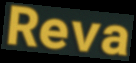
Reva